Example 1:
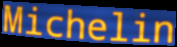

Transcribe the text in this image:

Michelin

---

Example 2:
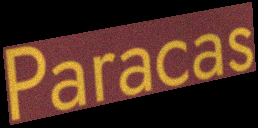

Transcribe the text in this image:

Paracas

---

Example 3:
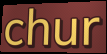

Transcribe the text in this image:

chur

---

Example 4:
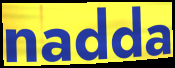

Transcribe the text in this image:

nadda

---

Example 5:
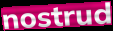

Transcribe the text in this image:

nostrud